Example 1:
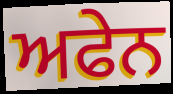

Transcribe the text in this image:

ਅਫੇਨ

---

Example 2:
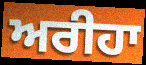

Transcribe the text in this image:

ਅਰੀਹਾ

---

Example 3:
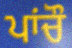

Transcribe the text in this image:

ਪਾਂਚੌ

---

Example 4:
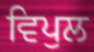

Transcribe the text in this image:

ਵਿਪੁਲ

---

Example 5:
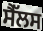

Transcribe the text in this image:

ਸੈੱਲਸ